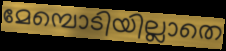
മേമ്പൊടിയില്ലാതെ